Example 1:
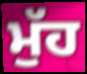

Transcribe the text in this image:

ਮੁੱਹ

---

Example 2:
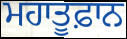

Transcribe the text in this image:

ਮਹਾਤੂਫ਼ਾਨ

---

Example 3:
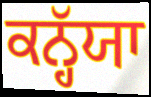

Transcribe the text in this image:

ਕਨ੍ਹੱਯਾ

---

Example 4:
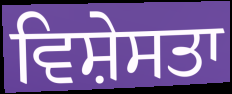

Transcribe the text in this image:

ਵਿਸ਼ੇਸਤਾ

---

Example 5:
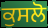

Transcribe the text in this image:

ਕੁਸਲੋ